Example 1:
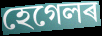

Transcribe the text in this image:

হেগেলৰ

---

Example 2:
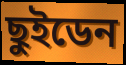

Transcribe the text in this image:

ছুইডেন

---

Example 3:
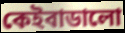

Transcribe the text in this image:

কেইবাডালো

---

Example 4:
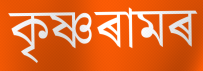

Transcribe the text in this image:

কৃষ্ণৰামৰ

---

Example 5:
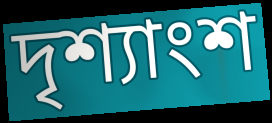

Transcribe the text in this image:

দৃশ্যাংশ